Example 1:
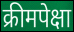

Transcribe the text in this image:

क्रीमपेक्षा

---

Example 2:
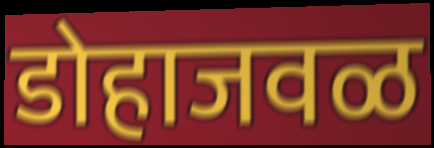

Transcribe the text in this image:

डोहाजवळ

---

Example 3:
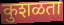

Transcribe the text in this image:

कुशळता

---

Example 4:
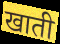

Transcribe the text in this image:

खाती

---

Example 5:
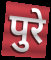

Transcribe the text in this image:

पुरे